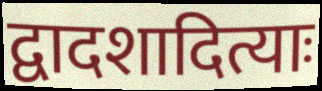
द्वादशादित्याः